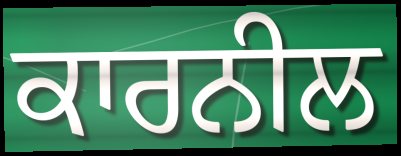
ਕਾਰਨੀਲ